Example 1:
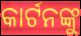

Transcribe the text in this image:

କାର୍ଟନଙ୍କୁ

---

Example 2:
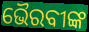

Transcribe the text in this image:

ଭୈରବୀଙ୍କ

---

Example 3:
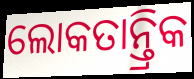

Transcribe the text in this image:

ଲୋକତାନ୍ତ୍ରିକ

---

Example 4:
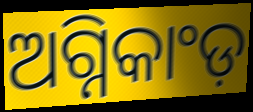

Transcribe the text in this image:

ଅଗ୍ନିକାଂଡ଼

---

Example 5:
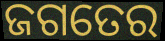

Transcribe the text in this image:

ଜଗତେର